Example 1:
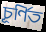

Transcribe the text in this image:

চূর্ণিত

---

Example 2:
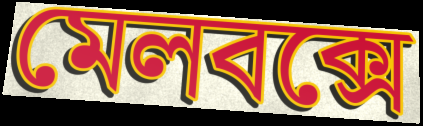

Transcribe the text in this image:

মেলবক্সে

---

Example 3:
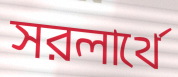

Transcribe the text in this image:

সরলার্থে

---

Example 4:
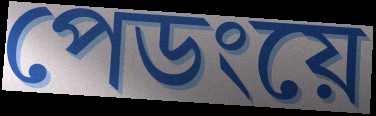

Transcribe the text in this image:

পেডংয়ে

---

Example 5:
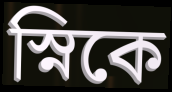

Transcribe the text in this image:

স্নিকে